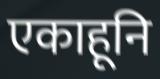
एकाहूनि